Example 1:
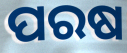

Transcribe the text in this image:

ପରଷ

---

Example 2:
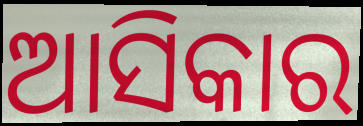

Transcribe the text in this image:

ଆସିକାର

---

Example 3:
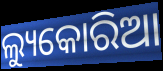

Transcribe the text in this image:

ଲ୍ୟୁକୋରିଆ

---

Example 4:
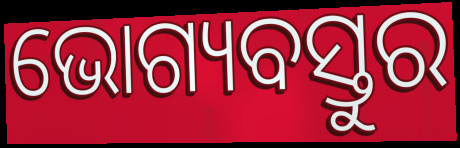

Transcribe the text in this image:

ଭୋଗ୍ୟବସ୍ତୁର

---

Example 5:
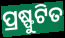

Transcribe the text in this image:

ପ୍ରଷ୍ଫୁଟିତ